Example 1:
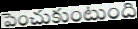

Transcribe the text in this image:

పెంచుకుంటుంది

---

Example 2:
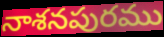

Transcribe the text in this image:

నాశనపురము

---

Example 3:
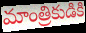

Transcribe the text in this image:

మాంత్రికుడికి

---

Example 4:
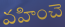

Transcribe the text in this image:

వహించె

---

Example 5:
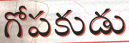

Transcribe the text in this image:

గోపకుడు